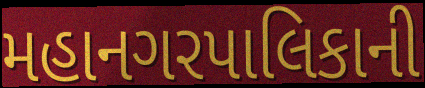
મહાનગરપાલિકાની